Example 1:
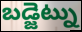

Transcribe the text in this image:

బడ్జెట్ను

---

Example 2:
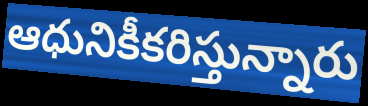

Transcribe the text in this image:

ఆధునికీకరిస్తున్నారు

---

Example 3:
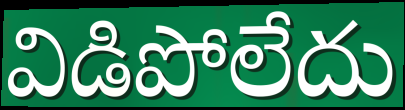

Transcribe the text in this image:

విడిపోలేదు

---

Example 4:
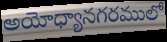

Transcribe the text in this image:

అయోధ్యానగరములో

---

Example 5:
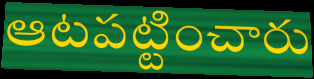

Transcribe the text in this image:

ఆటపట్టించారు